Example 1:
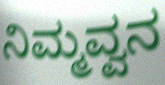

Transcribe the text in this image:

ನಿಮ್ಮವ್ವನ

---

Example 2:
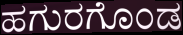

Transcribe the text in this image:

ಹಗುರಗೊಂಡ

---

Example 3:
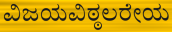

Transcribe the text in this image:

ವಿಜಯವಿಠ್ಠಲರೇಯ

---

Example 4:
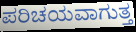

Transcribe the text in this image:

ಪರಿಚಯವಾಗುತ್ತ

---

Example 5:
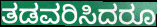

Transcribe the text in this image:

ತಡವರಿಸಿದರೂ